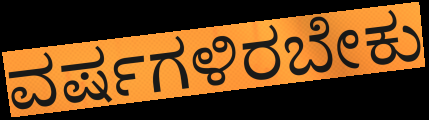
ವರ್ಷಗಳಿರಬೇಕು